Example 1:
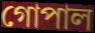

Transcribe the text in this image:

গোপাল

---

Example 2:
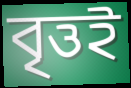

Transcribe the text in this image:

বৃত্তই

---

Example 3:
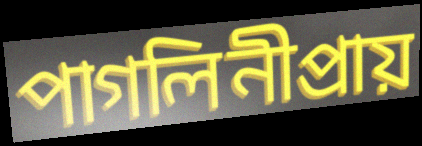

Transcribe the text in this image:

পাগলিনীপ্রায়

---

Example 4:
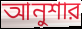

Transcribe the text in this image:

আনুশার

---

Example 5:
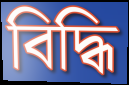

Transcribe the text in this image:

বিদ্ধি